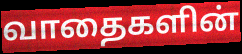
வாதைகளின்